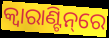
କ୍ବାରାଣ୍ଟିନ୍‌ରେ